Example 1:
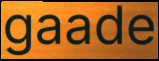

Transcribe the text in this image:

gaade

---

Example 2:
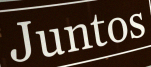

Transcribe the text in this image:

Juntos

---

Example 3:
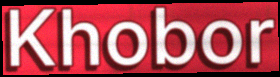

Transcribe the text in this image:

Khobor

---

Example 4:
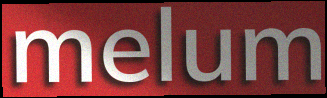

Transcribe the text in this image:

melum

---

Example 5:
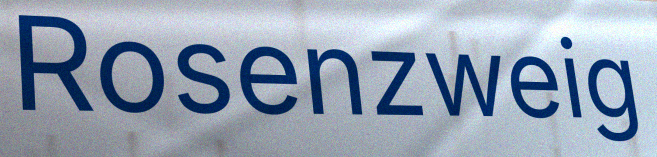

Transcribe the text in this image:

Rosenzweig